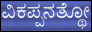
ವಿಕಪ್ಪನತ್ಥೋ